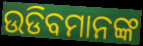
ଉଡିବମାନଙ୍କ